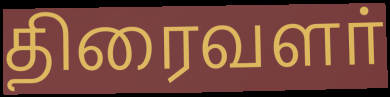
திரைவளர்